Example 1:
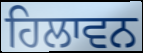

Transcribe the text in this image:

ਹਿਲਾਵਨ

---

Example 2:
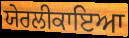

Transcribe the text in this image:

ਯੇਰਲੀਕਾਇਆ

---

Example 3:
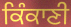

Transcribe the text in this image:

ਕਿੰਕਾਣੀ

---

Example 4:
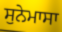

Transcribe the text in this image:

ਸੁਨੇਮਾਸਾ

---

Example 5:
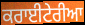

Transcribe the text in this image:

ਕਰਾਈਟੇਰੀਆ